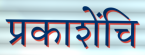
प्रकाशेंचि